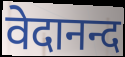
वेदानन्द